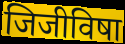
जिजीविषा